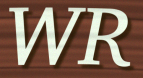
WR